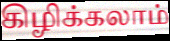
கிழிக்கலாம்